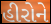
હીરોને